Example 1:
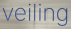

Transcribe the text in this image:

veiling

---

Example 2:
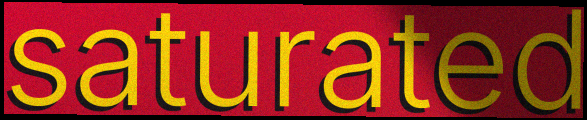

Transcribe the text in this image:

saturated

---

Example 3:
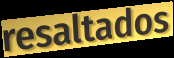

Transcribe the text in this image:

resaltados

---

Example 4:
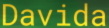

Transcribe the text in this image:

Davida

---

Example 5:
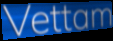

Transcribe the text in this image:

Vettam